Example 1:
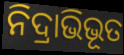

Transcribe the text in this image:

ନିଦ୍ରାଭିଭୂତ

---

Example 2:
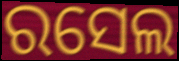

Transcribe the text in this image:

ରସେଲ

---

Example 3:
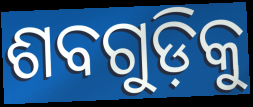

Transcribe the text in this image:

ଶବଗୁଡ଼ିକୁ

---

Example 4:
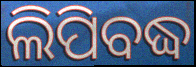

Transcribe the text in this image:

ଲିପିବଦ୍ଧ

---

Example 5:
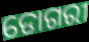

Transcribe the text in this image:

ଡୋଗରୀ